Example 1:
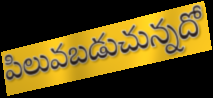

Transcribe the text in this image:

పిలువబడుచున్నదో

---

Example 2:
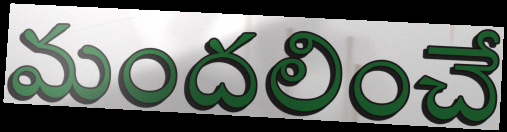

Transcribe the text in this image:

మందలించే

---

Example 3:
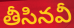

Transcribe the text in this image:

తీసినవీ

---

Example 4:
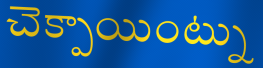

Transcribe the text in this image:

చెక్పాయింట్ను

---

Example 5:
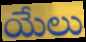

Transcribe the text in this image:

యేలు